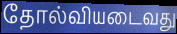
தோல்வியடைவது